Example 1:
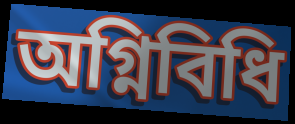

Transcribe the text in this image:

অগ্নিবিধি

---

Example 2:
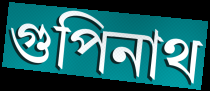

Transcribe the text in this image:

গুপিনাথ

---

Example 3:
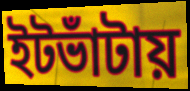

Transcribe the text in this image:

ইটভাঁটায়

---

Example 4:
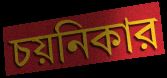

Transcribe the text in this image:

চয়নিকার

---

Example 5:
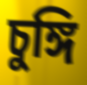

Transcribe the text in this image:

চুঙ্গি